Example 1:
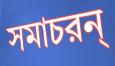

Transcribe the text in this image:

সমাচরন্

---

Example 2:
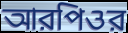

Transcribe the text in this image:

আরপিওর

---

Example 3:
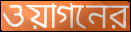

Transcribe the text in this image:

ওয়াগনের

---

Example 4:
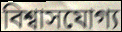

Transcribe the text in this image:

বিশ্বাসযোগ্য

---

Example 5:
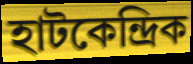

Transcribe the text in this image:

হাটকেন্দ্রিক